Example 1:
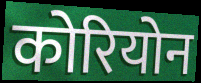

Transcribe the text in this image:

कोरियोन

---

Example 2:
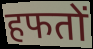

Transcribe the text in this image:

हफतों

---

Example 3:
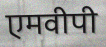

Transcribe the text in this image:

एमवीपी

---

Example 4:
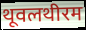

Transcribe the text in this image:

थूवलथीरम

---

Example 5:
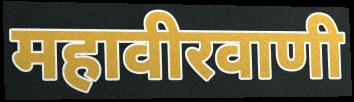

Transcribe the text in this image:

महावीरवाणी